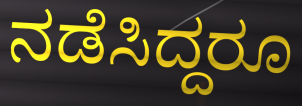
ನಡೆಸಿದ್ದರೂ